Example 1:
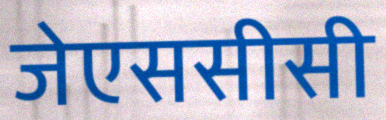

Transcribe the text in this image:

जेएससीसी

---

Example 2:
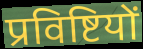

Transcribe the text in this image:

प्रविष्टियों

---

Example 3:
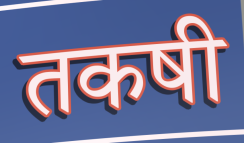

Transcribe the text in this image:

तकषी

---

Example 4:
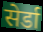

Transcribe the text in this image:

सेर्डा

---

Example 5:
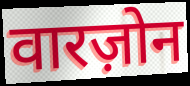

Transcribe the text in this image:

वारज़ोन